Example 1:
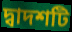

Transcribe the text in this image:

দ্বাদশটি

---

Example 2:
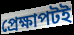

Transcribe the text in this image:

প্রেক্ষাপটই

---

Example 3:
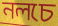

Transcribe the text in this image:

নলচে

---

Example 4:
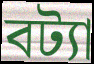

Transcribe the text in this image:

বট্যা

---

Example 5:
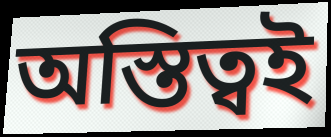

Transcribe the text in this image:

অস্তিত্বই